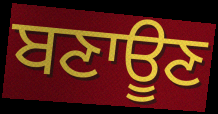
ਬਣਾਊਣ